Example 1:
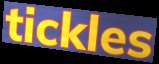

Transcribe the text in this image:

tickles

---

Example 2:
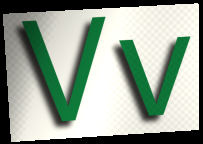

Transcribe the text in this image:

Vv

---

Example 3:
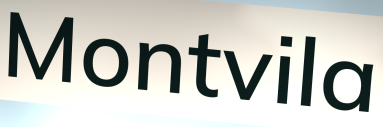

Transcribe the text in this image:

Montvila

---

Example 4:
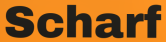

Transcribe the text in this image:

Scharf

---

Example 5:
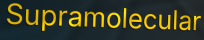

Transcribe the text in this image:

Supramolecular